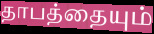
தாபத்தையும்